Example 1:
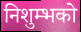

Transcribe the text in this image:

निशुम्भको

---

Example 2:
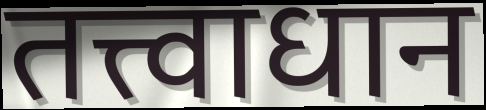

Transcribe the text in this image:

तत्त्वाधान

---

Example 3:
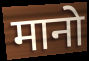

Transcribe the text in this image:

मानो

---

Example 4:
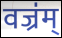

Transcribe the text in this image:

वज्र॑म्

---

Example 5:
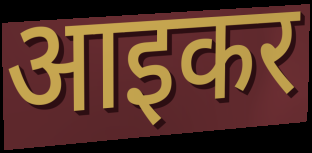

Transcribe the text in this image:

आइकर